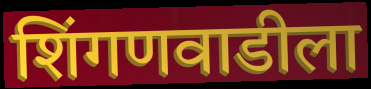
शिंगणवाडीला